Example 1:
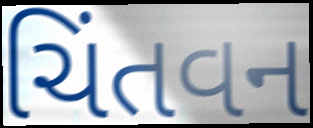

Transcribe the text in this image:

ચિંતવન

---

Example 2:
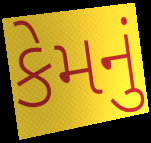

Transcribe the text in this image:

કેમનું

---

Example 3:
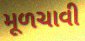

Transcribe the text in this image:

મૂળચાવી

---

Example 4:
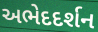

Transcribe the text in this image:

અભેદદર્શન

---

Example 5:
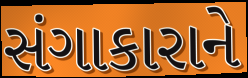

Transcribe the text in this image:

સંગાકારાને